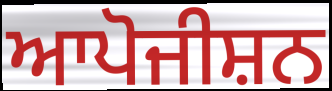
ਆਪੋਜੀਸ਼ਨ